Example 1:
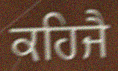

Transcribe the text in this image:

ਕਹਿਜੈ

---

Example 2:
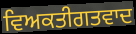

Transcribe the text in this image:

ਵਿਅਕਤੀਗਤਵਾਦ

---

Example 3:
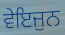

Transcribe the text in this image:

ਵੇਇਜੁਨ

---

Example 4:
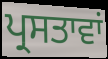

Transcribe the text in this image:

ਪ੍ਰਸਤਾਵਾਂ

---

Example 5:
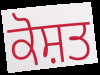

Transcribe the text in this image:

ਕੋਸ਼ਤ